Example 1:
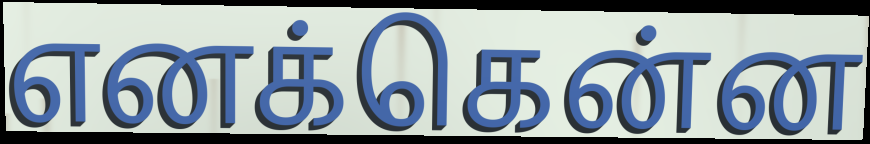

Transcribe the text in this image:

எனக்கென்ன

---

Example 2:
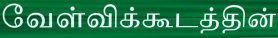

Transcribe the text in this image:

வேள்விக்கூடத்தின்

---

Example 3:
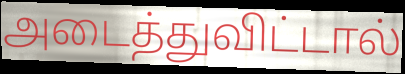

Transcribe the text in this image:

அடைத்துவிட்டால்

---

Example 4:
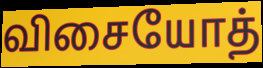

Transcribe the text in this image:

விசையோத்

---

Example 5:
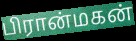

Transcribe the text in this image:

பிரான்மகன்